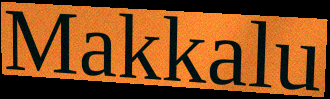
Makkalu